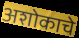
अशोकाचे